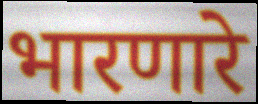
भारणारे